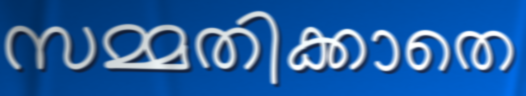
സമ്മതിക്കാതെ